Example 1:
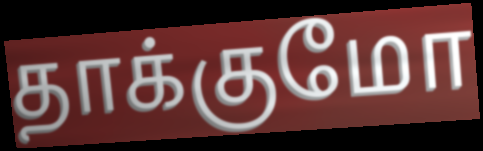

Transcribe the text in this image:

தாக்குமோ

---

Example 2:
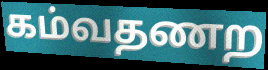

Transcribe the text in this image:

கம்வதணற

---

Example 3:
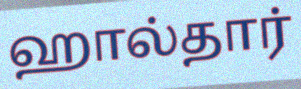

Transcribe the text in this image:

ஹால்தார்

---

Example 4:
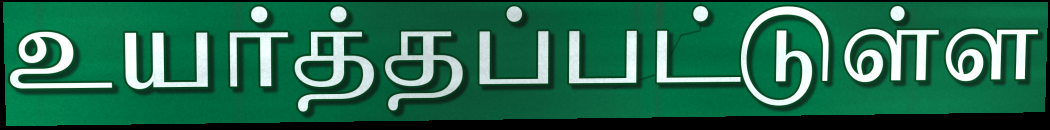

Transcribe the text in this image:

உயர்த்தப்பட்டுள்ள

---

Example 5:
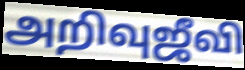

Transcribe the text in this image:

அறிவுஜீவி